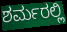
ಶರ್ಮರಲ್ಲಿ